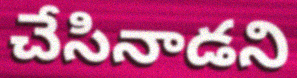
చేసినాడని